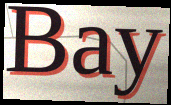
Bay